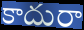
కాదురా